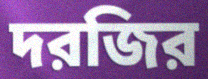
দরজির